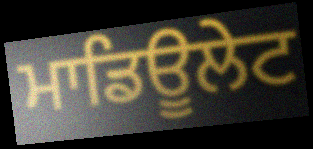
ਮਾਡਿਊਲੇਟ